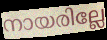
നായരില്ലേ